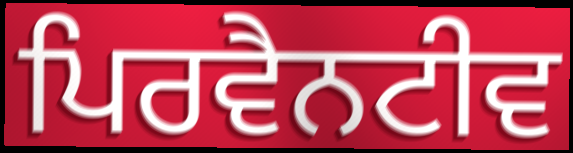
ਪਿਰਵੈਨਟੀਵ